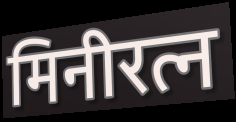
मिनीरत्न